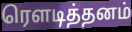
ரௌடித்தனம்